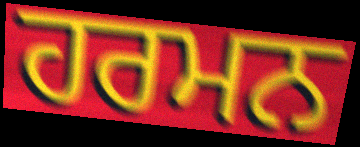
ਹਰਮਨ